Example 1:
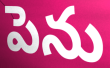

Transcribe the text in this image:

పెను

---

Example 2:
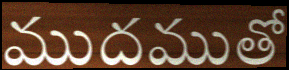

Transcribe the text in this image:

ముదముతో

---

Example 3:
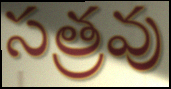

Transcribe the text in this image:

సత్రవు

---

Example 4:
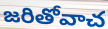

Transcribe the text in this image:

జరితోవాచ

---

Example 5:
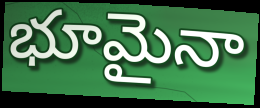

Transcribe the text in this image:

భూమైనా